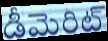
డీమెరిట్